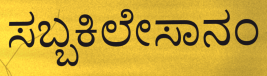
ಸಬ್ಬಕಿಲೇಸಾನಂ